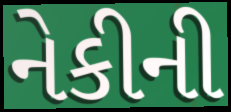
નેકીની